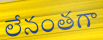
లేనంతగా